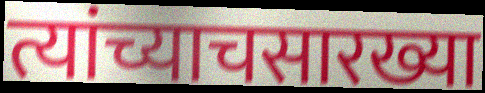
त्यांच्याचसारख्या